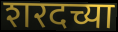
शरदच्या